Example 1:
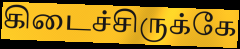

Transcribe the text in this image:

கிடைச்சிருக்கே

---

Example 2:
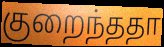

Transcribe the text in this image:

குறைந்ததா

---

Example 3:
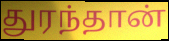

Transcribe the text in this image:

துரந்தான்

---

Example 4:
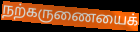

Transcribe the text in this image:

நற்கருணையைக்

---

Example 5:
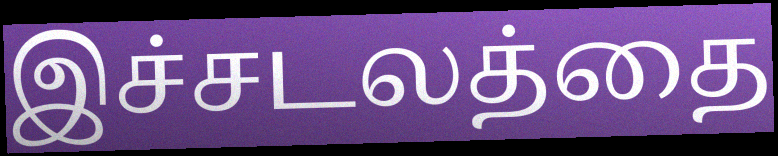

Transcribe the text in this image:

இச்சடலத்தை